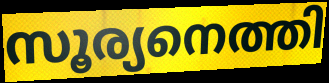
സൂര്യനെത്തി